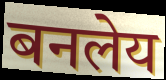
बनलेय